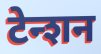
टेन्शन